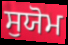
ਸੁਯੋਮ